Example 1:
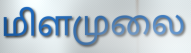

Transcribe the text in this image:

மிளமுலை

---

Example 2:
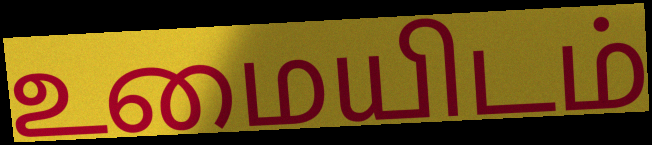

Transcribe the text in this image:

உமையிடம்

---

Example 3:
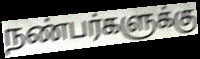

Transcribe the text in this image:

நண்பர்களுக்கு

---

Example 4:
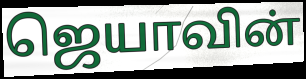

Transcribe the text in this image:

ஜெயாவின்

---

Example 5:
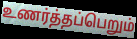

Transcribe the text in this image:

உணர்த்தப்பெறும்